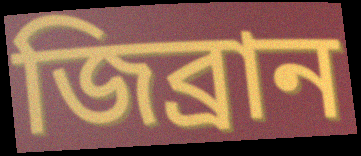
জিব্রান